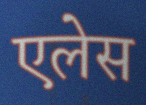
एलेस